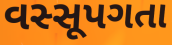
વસ્સૂપગતા